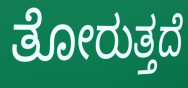
ತೋರುತ್ತದೆ